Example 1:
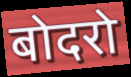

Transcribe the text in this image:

बोदरो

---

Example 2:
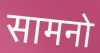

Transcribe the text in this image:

सामनो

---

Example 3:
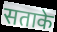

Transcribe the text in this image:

सताके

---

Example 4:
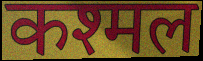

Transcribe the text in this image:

कश्मल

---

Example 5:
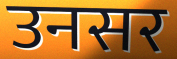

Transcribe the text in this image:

उनसर